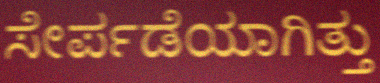
ಸೇರ್ಪಡೆಯಾಗಿತ್ತು